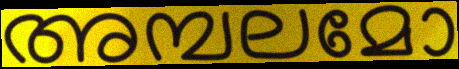
അമ്പലമോ